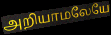
அறியாமலேயே